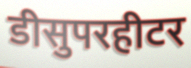
डीसुपरहीटर